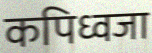
कपिध्वजा